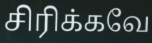
சிரிக்கவே